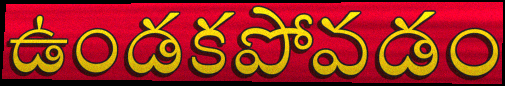
ఉండకపోవడం